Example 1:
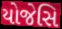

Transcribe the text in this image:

યોજેસિ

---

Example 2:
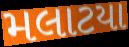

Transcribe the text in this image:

મલાટયા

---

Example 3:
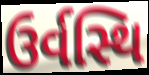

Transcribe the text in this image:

ઉર્વસ્થિ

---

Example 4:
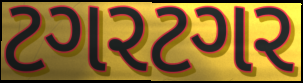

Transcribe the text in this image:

ટગરટગર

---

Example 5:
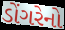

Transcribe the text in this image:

ડોંગરેનો